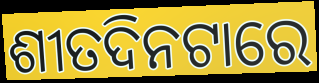
ଶୀତଦିନଟାରେ